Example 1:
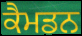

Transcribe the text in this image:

ਕੈਮਡਨ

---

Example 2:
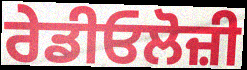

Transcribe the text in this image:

ਰੇਡੀਓਲੋਜ਼ੀ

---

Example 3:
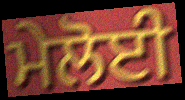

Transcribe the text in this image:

ਮੇਲੋਈ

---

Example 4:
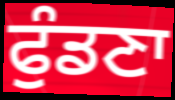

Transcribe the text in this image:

ਫੁੰਡਣਾ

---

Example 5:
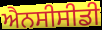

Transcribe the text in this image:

ਐਨਸੀਸੀਡੀ